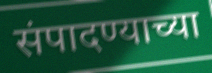
संपादण्याच्या